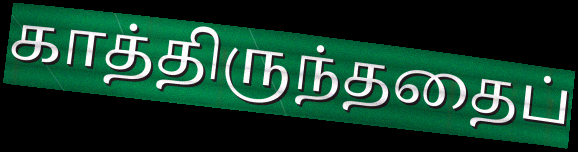
காத்திருந்ததைப்